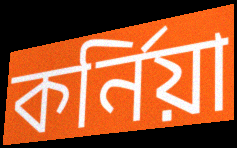
কৰ্নিয়া